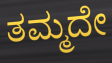
ತಮ್ಮದೇ